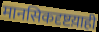
मानसिकदृष्टय़ाही